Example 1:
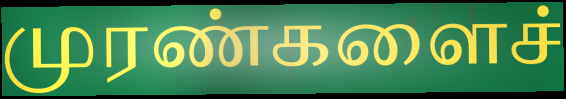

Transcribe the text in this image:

முரண்களைச்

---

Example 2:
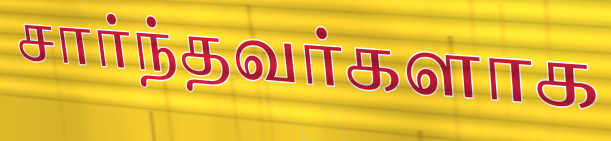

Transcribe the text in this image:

சார்ந்தவர்களாக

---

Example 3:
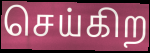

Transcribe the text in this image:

செய்கிற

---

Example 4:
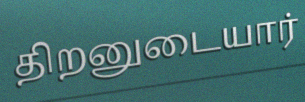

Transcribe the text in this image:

திறனுடையார்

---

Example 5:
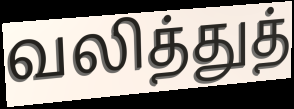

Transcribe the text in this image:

வலித்துத்